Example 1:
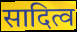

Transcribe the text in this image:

सादित्व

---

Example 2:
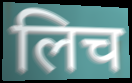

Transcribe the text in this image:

लिच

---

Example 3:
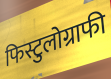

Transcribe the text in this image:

फिस्टुलोग्राफी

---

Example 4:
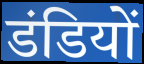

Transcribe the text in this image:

डंडियों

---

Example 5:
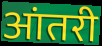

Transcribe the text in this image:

आंतरी